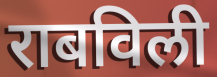
राबविली